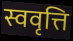
स्ववृत्ति